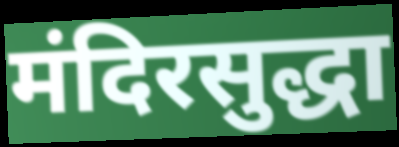
मंदिरसुद्धा